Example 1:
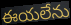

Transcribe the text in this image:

ఈయలేను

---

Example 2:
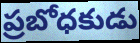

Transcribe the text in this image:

ప్రబోధకుడు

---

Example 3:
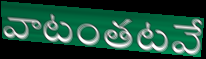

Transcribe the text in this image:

వాటంతటవే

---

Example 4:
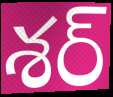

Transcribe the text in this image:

శర్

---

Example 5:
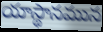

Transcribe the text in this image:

యాస్థానమున